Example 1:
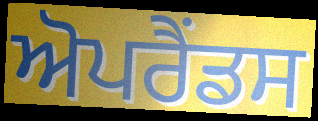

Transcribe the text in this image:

ਅੋਪਰੈਂਡਸ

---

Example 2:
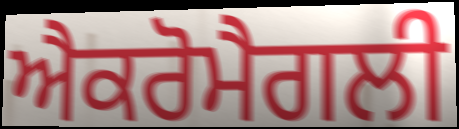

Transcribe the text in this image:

ਐਕਰੋਮੈਗਲੀ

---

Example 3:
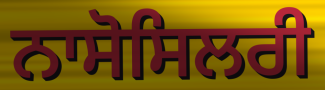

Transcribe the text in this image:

ਨਾਸੋਸਿਲਰੀ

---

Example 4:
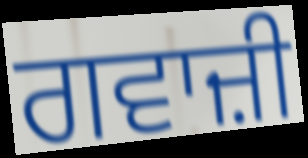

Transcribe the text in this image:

ਗਵਾਜ਼ੀ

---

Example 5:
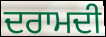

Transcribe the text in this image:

ਦਰਾਮਦੀ